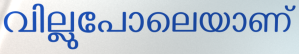
വില്ലുപോലെയാണ്